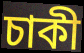
চাকী